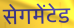
सेगमेंटेड